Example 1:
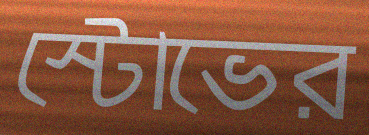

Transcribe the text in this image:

স্টোভের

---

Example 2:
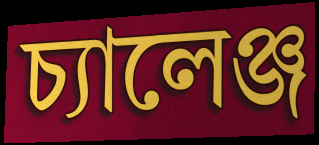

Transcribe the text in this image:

চ্যালেঞ্জ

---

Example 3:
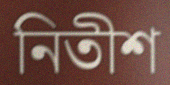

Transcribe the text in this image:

নিতীশ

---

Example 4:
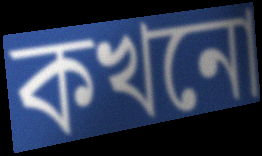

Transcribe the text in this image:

কখনো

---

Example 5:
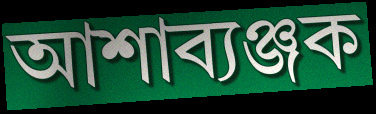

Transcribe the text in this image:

আশাব্যঞ্জক